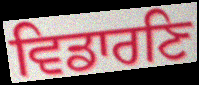
ਵਿਡਾਰਣਿ